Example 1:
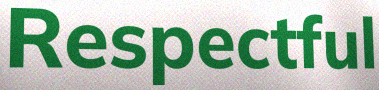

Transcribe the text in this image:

Respectful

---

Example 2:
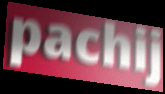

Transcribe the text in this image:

pachij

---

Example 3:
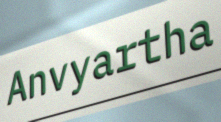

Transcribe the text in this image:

Anvyartha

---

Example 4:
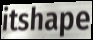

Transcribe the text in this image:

itshape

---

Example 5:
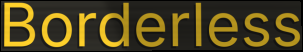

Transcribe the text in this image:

Borderless